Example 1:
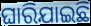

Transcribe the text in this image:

ଘାରିଯାଇଛି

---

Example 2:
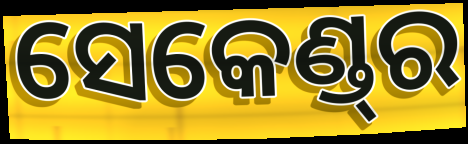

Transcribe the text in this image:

ସେକେଣ୍ଡ୍‌ର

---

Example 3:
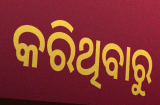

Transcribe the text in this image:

କରିଥିବାରୁ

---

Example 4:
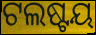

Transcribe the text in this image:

ଟଲଷ୍ଟୟ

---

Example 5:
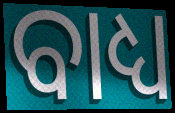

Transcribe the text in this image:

ବାଧ୍ୟ